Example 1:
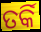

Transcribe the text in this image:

ତର୍କି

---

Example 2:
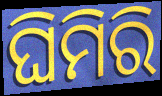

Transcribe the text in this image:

ଘିମିରି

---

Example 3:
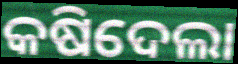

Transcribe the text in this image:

କଷିଦେଲା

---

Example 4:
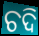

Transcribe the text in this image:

ଚଦି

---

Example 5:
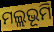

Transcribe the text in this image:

ମଲ୍ଲଭୂମି